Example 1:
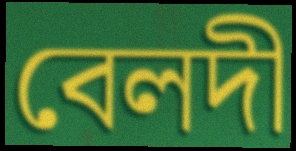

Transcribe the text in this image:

বেলদী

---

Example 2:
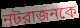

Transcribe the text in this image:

নটরাজনকে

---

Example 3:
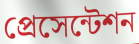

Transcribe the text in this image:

প্রেসেন্টেশন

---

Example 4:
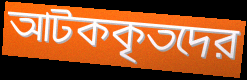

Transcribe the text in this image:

আটককৃতদের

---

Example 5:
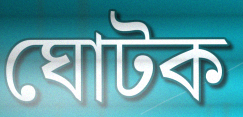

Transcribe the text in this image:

ঘোটক